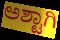
ಅಶ್ಟಾಗಿ